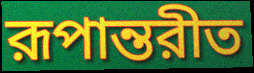
রূপান্তরীত